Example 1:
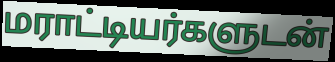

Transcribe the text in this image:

மராட்டியர்களுடன்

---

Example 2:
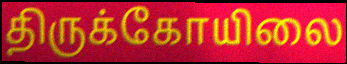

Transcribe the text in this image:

திருக்கோயிலை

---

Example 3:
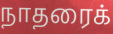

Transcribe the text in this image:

நாதரைக்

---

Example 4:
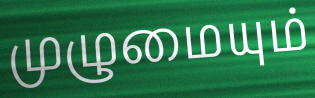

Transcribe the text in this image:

முழுமையும்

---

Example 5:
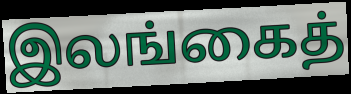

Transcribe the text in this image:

இலங்கைத்